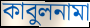
কাবুলনামা